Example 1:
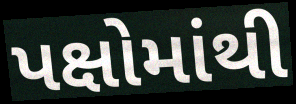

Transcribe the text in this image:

પક્ષોમાંથી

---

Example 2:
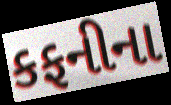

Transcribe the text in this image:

કફનીના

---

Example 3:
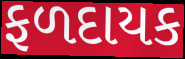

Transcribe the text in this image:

ફળદાયક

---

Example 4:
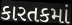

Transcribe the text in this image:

કારતકમાં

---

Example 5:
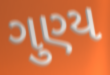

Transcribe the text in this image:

ગુણ્ય